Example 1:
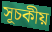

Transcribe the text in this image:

সূচকীয়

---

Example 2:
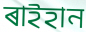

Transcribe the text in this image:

ৰাইহান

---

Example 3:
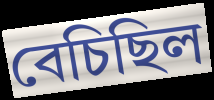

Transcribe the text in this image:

বেচিছিল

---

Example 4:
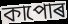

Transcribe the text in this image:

কাপোৰ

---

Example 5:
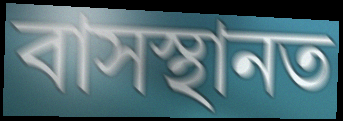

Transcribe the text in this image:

বাসস্থানত